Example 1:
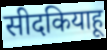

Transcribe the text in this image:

सीदकियाहू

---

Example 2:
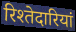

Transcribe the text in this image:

रिश्तेदारियां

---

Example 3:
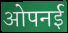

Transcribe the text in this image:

ओपनई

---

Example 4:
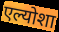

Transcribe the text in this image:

एल्योशा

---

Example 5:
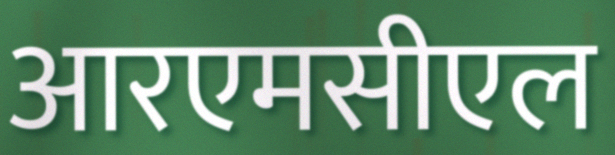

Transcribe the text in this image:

आरएमसीएल